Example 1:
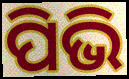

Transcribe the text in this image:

ପିଭି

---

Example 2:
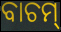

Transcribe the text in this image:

ବାଚମ୍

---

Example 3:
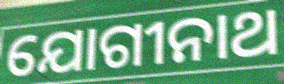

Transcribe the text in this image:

ଯୋଗୀନାଥ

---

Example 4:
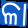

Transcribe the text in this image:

ଳା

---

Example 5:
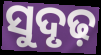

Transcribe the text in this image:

ସୁଦୃଢ଼